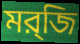
মর্‌জি